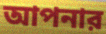
আপনার